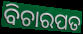
ବିଚାରପତ